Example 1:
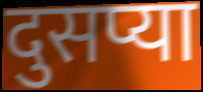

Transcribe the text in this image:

दुसप्या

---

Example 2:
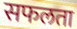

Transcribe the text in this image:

सफलता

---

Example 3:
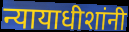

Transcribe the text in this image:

न्यायाधीशांनी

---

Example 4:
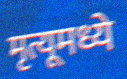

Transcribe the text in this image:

मृत्यूमध्ये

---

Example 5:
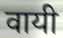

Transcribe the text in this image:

वायी